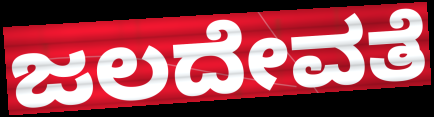
ಜಲದೇವತೆ